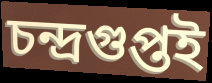
চন্দ্ৰগুপ্তই